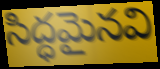
సిద్ధమైనవి